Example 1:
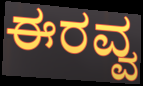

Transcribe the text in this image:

ಈರವ್ವ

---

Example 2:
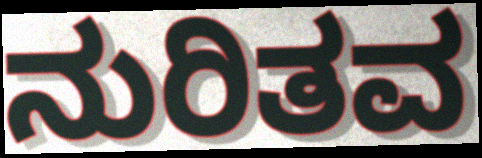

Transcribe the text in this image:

ನುರಿತವ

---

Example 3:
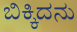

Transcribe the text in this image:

ಬಿಕ್ಕಿದನು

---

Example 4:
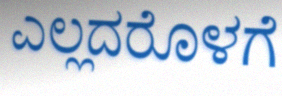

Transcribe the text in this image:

ಎಲ್ಲದರೊಳಗೆ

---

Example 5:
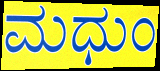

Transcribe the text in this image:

ಮಧುಂ